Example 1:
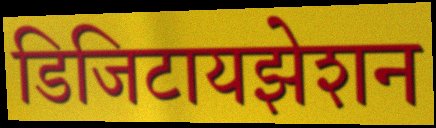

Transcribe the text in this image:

डिजिटायझेशन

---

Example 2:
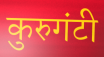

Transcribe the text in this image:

कुरुगंटी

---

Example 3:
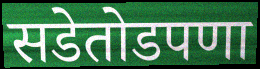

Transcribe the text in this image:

सडेतोडपणा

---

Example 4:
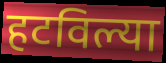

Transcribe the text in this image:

हटविल्या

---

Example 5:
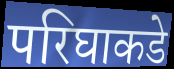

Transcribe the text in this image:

परिघाकडे